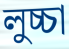
লুচ্চা